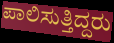
ಪಾಲಿಸುತ್ತಿದ್ದರು